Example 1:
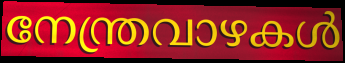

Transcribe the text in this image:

നേന്ത്രവാഴകൾ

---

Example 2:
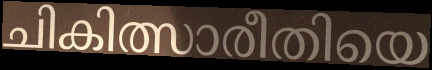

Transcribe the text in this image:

ചികിത്സാരീതിയെ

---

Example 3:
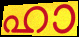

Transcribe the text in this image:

ഹാ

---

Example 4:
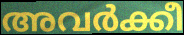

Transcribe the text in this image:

അവർക്കീ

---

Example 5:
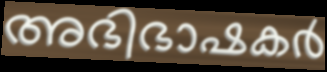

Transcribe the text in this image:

അഭിഭാഷകർ